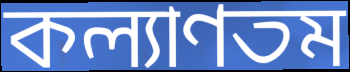
কল্যাণতম